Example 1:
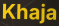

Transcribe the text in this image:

Khaja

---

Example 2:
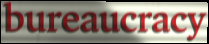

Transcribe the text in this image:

bureaucracy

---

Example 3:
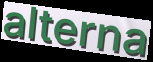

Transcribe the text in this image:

alterna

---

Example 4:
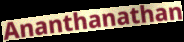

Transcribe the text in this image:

Ananthanathan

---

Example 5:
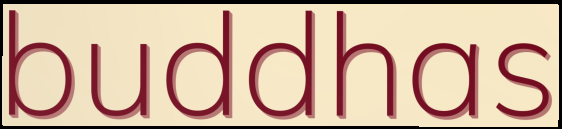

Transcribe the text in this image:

buddhas